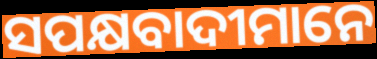
ସପକ୍ଷବାଦୀମାନେ